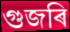
গুজৰি